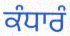
ਕੰਧਾਰੰ